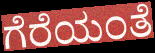
ಗೆರೆಯಂತೆ